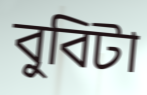
বুবিটা